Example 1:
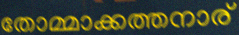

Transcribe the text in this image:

തോമ്മാക്കത്തനാര്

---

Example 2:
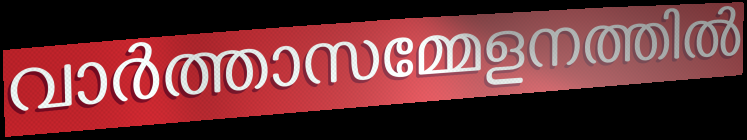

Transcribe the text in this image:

വാർത്താസമ്മേളനത്തിൽ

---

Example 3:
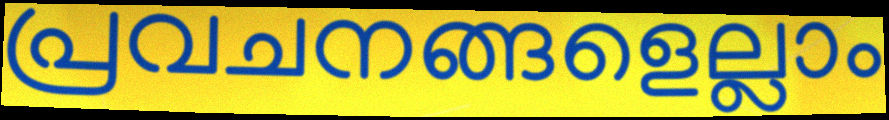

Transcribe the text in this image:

പ്രവചനങ്ങളെല്ലാം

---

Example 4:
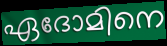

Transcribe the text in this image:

ഏദോമിനെ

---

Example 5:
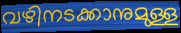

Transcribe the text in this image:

വഴിനടക്കാനുമുള്ള